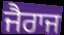
ਜੈਰਾਜ